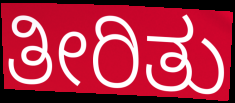
ತೀರಿತು